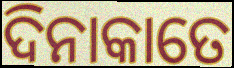
ଦିନାକାତେ